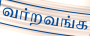
வர்றவங்க